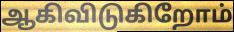
ஆகிவிடுகிறோம்